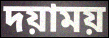
দয়াময়